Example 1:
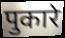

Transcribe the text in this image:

पुकारे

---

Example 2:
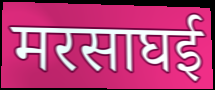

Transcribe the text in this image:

मरसाघई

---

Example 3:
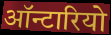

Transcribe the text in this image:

ऑन्टारियो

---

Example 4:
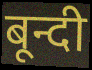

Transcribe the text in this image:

बून्दी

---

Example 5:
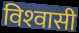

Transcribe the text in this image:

विश्‍वासी